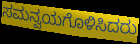
ಸಮನ್ವಯಗೊಳಿಸಿದರು